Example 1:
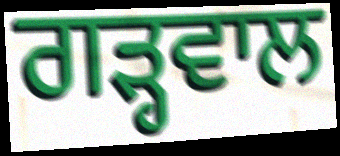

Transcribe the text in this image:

ਗੜ੍ਹਵਾਲ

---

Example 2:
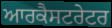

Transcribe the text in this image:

ਆਰਕੈਸਟਰੇਟਰ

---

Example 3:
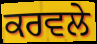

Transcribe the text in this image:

ਕਰਵਲੇ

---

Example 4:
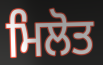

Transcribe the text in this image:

ਮਿਲੋਤ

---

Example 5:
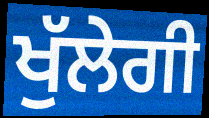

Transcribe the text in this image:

ਖੁੱਲੇਗੀ